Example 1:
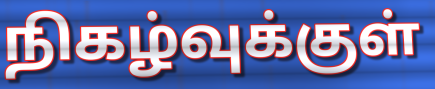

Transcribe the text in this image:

நிகழ்வுக்குள்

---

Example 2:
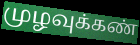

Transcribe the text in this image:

முழவுக்கண்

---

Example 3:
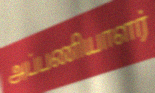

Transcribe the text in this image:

அப்பணியாளர்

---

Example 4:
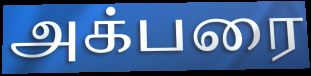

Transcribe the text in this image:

அக்பரை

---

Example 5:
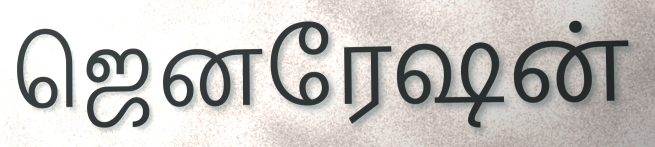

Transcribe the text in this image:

ஜெனரேஷன்